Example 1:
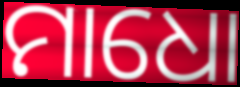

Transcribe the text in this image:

ମାଧୋ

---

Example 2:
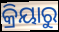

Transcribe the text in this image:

କ୍ରିୟାରୁ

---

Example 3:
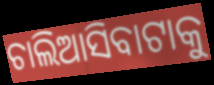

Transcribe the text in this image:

ଚାଲିଆସିବାଟାକୁ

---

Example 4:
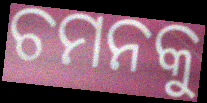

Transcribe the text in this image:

ଚମନକୁ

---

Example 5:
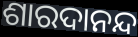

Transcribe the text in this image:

ଶାରଦାନନ୍ଦ